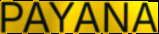
PAYANA